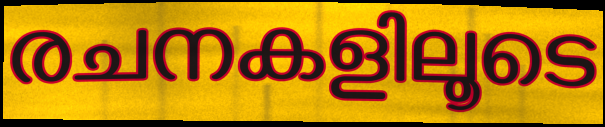
രചനകളിലൂടെ